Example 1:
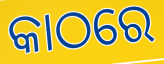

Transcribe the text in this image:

କାଠରେ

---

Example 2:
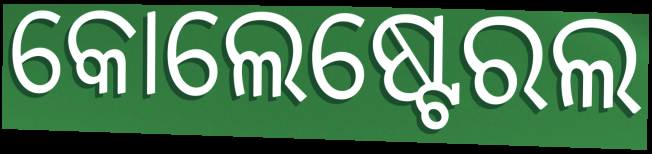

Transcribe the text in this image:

କୋଲେଷ୍ଟେରଲ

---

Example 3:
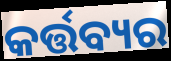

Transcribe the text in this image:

କର୍ତ୍ତବ୍ୟର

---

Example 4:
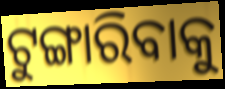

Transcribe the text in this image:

ଟୁଙ୍ଗାରିବାକୁ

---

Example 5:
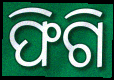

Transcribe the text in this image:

ଫିଗି